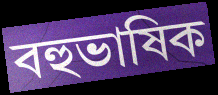
বহুভাষিক